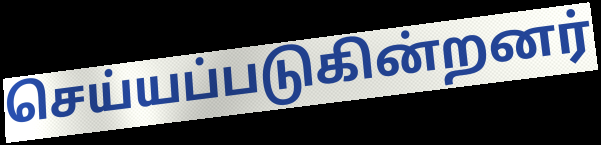
செய்யப்படுகின்றனர்